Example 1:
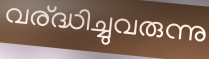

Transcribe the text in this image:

വര്ദ്ധിച്ചുവരുന്നു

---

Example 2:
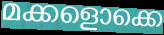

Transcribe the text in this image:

മക്കളൊക്കെ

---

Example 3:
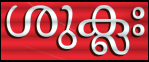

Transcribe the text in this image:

ശുക്ലഃ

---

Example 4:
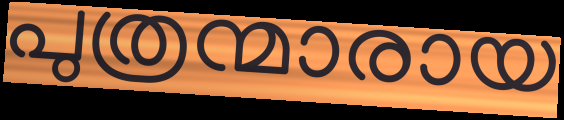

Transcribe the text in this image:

പുത്രന്മാരായ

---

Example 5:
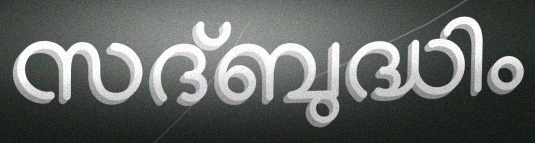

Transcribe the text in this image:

സദ്ബുദ്ധിം